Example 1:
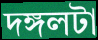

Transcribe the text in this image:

দঙ্গলটা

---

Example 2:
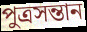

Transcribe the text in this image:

পুত্রসন্তান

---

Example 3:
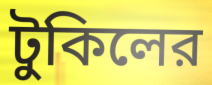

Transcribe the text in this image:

টুকিলের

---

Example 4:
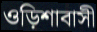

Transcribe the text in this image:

ওড়িশাবাসী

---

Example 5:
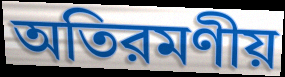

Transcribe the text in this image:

অতিরমণীয়